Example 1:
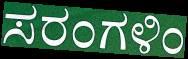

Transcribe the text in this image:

ಸರಂಗಳಿಂ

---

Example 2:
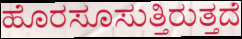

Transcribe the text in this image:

ಹೊರಸೂಸುತ್ತಿರುತ್ತದೆ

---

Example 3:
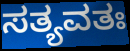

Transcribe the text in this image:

ಸತ್ಯವತಃ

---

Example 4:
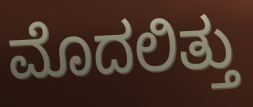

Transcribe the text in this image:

ಮೊದಲಿತ್ತು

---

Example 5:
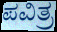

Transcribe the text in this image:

ಪವಿತ್ರ